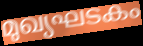
മുഖ്യഘടകം